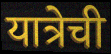
यात्रेची